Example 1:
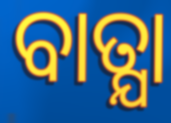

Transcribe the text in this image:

ବାତ୍ଯା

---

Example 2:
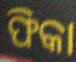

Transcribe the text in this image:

ଫିକା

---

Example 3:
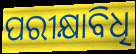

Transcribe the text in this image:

ପରୀକ୍ଷାବିଧି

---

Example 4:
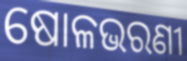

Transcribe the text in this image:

ଷୋଳଭରଣୀ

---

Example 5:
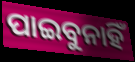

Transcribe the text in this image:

ପାଇବୁନାହିଁ